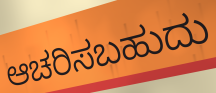
ಆಚರಿಸಬಹುದು